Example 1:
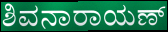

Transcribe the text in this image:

ಶಿವನಾರಾಯಣ್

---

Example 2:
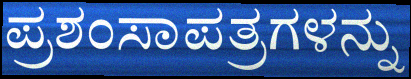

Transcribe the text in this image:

ಪ್ರಶಂಸಾಪತ್ರಗಳನ್ನು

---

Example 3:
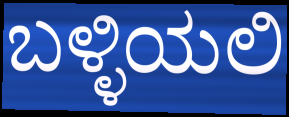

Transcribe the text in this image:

ಬಳ್ಳಿಯಲಿ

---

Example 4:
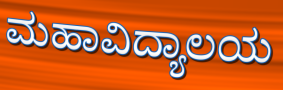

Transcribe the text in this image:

ಮಹಾವಿದ್ಯಾಲಯ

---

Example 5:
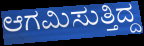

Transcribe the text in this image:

ಆಗಮಿಸುತ್ತಿದ್ದ